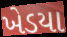
ખેડયા